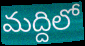
మద్దిలో